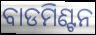
ବାଡମିଣ୍ଟନ